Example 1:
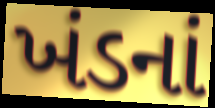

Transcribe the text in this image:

ખંડનાં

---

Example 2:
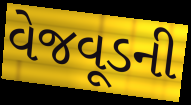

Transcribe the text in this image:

વેજવૂડની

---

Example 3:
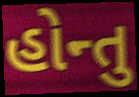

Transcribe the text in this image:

હોન્તુ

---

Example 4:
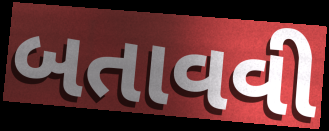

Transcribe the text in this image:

બતાવવી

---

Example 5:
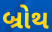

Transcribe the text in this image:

બ્રોથ